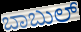
ಬಾಬುಲ್